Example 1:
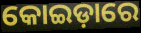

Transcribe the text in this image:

କୋଇଡ଼ାରେ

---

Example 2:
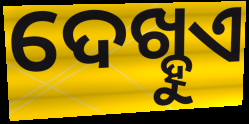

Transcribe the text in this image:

ଦେଖ୍ହୁଏ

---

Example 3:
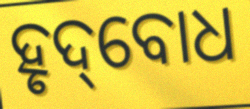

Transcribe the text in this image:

ହୃଦ୍‌ବୋଧ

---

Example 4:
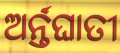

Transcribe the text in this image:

ଅର୍ନ୍ତଘାତୀ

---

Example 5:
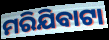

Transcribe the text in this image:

ମରିଯିବାଟା